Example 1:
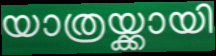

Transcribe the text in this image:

യാത്രയ്ക്കായി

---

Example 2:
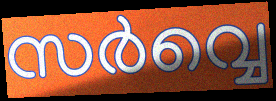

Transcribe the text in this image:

സർവ്വെ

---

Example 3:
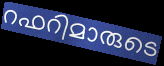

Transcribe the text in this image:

റഫറിമാരുടെ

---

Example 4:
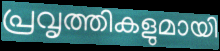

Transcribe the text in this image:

പ്രവൃത്തികളുമായി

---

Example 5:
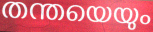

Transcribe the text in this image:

തന്തയെയും